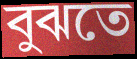
বুঝতে